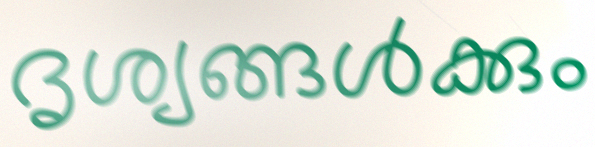
ദൃശ്യങ്ങൾക്കും